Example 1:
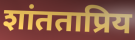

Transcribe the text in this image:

शांतताप्रिय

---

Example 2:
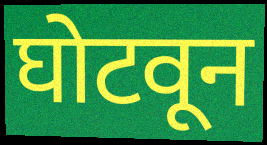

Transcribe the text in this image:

घोटवून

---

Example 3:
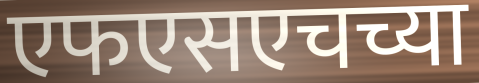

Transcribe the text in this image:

एफएसएचच्या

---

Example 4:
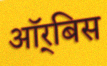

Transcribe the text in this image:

ऑर्बिस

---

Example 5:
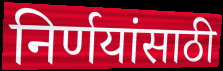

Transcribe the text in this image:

निर्णयांसाठी